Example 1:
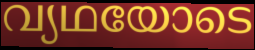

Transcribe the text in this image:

വ്യഥയോടെ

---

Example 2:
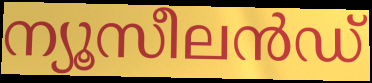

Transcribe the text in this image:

ന്യൂസീലൻഡ്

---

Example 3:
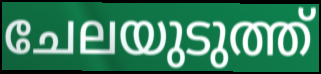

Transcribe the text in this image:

ചേലയുടുത്ത്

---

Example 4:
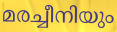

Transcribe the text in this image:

മരച്ചീനിയും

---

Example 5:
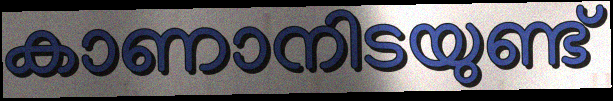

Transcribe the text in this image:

കാണാനിടയുണ്ട്